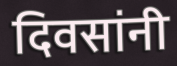
दिवसांनी